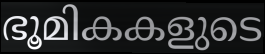
ഭൂമികകളുടെ